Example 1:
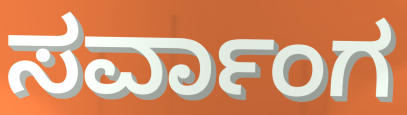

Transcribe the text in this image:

ಸರ್ವಾಂಗ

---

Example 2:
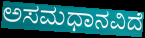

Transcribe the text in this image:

ಅಸಮಧಾನವಿದೆ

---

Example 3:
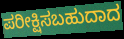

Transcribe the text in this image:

ಪರೀಕ್ಷಿಸಬಹುದಾದ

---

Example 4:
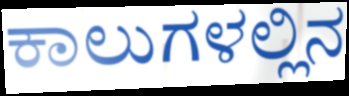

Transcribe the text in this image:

ಕಾಲುಗಳಲ್ಲಿನ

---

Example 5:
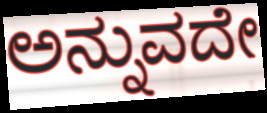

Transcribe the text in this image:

ಅನ್ನುವದೇ